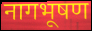
नागभूषण